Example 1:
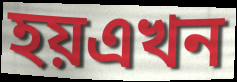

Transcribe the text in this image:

হয়এখন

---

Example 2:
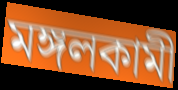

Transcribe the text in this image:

মঙ্গলকামী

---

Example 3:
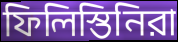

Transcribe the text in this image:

ফিলিস্তিনিরা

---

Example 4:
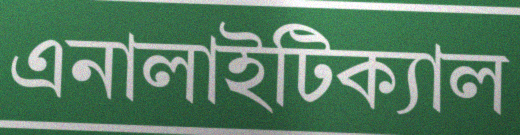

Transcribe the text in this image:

এনালাইটিক্যাল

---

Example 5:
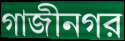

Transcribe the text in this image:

গাজীনগর